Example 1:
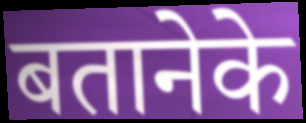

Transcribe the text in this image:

बतानेके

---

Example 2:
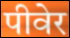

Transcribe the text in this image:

पीवेर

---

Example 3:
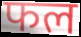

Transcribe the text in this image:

फल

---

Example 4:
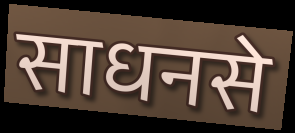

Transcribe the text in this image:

साधनसे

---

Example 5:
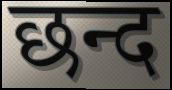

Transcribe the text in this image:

छन्द